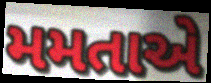
મમતાએ